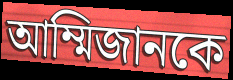
আম্মিজানকে